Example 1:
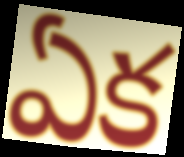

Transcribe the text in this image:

ఏక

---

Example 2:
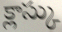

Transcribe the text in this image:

క్లాస్కు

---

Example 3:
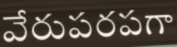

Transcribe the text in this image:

వేరుపరపగా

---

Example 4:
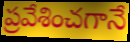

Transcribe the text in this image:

ప్రవేశించగానే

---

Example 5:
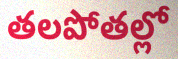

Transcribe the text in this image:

తలపోతల్లో